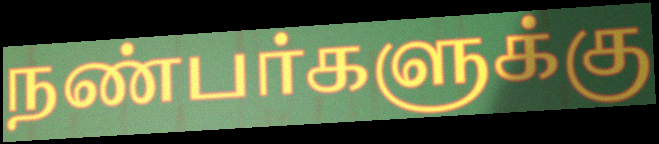
நண்பர்களுக்கு